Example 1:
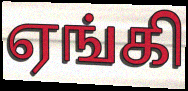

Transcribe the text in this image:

ஏங்கி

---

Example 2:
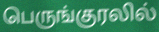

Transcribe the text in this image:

பெருங்குரலில்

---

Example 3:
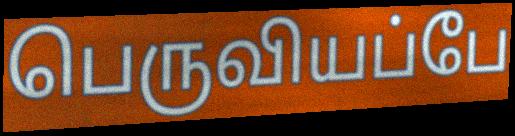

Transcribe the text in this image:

பெருவியப்பே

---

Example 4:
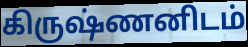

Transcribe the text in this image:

கிருஷ்ணனிடம்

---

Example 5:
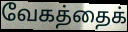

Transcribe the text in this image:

வேகத்தைக்